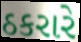
ઠકરારે